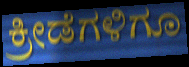
ಕ್ರೀಡೆಗಳಿಗೂ